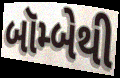
બૉમ્બેથી